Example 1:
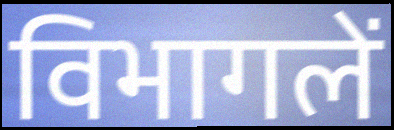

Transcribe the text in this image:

विभागलें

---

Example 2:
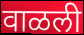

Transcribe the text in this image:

वाळली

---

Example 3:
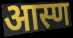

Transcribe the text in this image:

आस्ण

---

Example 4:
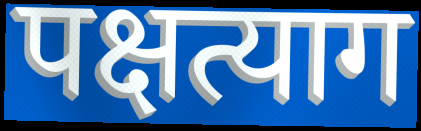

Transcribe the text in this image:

पक्षत्याग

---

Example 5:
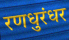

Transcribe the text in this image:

रणधुरंधर